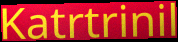
Katrtrinil